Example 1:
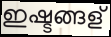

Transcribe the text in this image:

ഇഷ്ടങ്ങള്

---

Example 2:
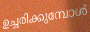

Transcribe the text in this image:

ഉച്ചരിക്കുമ്പോൾ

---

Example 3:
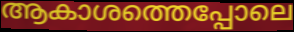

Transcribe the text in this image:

ആകാശത്തെപ്പോലെ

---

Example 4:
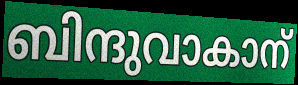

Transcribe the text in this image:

ബിന്ദുവാകാന്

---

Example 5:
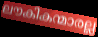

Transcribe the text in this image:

ലൗകികന്മാരല്ല